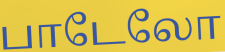
பாடேலோ